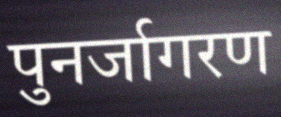
पुनर्जागरण